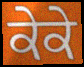
ਕੇਕੇ